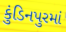
કુંડિનપુરમાં